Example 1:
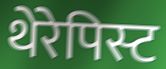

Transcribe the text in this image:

थेरेपिस्‍ट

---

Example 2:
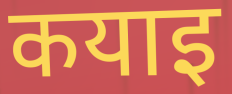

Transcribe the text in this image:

कयाइ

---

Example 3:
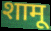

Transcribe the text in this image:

शामू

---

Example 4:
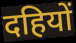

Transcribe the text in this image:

दहियों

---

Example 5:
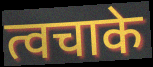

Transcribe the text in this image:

त्वचाके